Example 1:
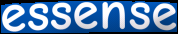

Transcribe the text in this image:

essense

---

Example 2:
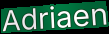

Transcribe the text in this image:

Adriaen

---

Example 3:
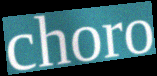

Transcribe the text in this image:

choro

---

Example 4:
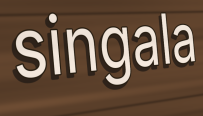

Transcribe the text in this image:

singala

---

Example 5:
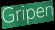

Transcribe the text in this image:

Gripen